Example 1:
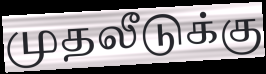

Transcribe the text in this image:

முதலீடுக்கு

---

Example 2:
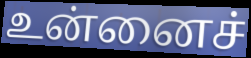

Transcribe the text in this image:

உன்னைச்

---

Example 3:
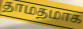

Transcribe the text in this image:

தாமதமாக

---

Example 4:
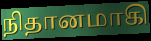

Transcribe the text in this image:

நிதானமாகி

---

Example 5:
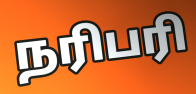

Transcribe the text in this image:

நரிபரி